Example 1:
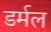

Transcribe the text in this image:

डर्मल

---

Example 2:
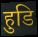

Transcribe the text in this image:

हुडि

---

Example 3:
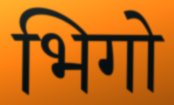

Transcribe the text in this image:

भिगो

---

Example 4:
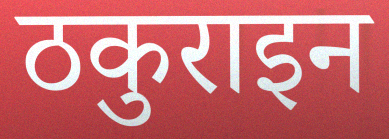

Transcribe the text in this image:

ठकुराइन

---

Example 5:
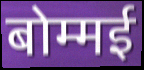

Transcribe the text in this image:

बोम्मई